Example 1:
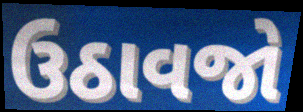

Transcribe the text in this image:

ઉઠાવજો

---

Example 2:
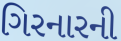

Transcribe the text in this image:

ગિરનારની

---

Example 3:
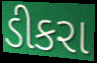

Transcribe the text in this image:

ડીકરા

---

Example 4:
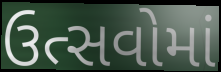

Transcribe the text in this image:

ઉત્સવોમાં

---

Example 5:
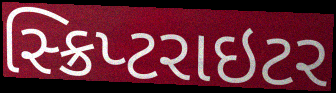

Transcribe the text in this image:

સ્ક્રિપ્ટરાઇટર